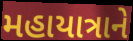
મહાયાત્રાને